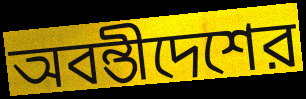
অবন্তীদেশের